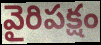
వైరిపక్షం